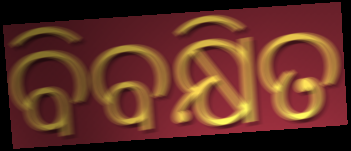
ବିବକ୍ଷିତ